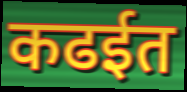
कढईत